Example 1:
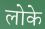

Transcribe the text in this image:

लोके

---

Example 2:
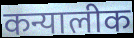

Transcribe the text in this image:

कन्यालीक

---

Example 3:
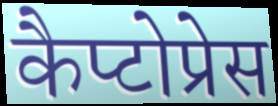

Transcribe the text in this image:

कैप्टोप्रेस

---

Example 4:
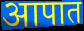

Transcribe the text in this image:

आपात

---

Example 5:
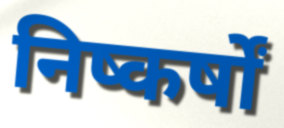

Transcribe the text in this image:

निष्कर्षों